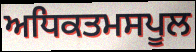
ਅਧਿਕਤਮਸਪੂਲ